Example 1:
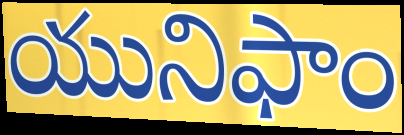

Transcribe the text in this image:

యునిఫాం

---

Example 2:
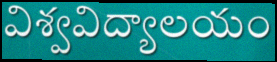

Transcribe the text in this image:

విశ్వవిద్యాలయం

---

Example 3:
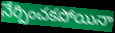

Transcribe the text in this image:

నేర్పించకపోయినా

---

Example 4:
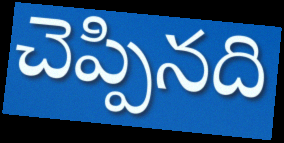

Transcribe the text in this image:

చెప్పినది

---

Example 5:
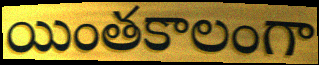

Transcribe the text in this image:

యింతకాలంగా